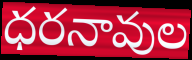
ధరనావుల